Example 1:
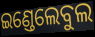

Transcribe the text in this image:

ଇଣ୍ଡେଲେବୁଲ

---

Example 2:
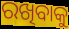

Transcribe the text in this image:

ରଖିବାକୁ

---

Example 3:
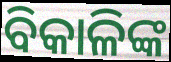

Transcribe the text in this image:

ବିକାଳିଙ୍କ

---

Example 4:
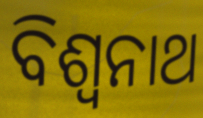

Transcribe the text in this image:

ବିଶ୍ୱନାଥ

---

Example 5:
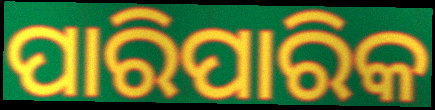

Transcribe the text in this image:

ପାରିପାରିକ